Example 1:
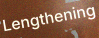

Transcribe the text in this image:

Lengthening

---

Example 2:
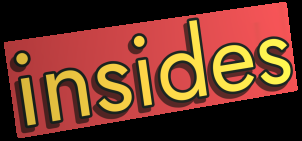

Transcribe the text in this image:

insides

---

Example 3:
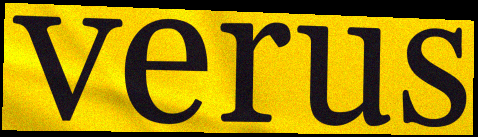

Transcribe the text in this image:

verus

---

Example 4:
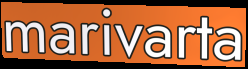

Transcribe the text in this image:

marivarta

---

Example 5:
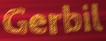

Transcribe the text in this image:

Gerbil